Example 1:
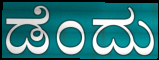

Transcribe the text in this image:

ಡೆಂದು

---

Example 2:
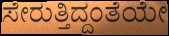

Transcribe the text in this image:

ಸೇರುತ್ತಿದ್ದಂತೆಯೇ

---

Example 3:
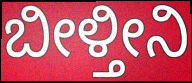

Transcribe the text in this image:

ಬೀಳ್ತೀನಿ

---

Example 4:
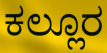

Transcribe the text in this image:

ಕಲ್ಲೂರ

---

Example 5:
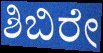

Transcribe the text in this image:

ಶಿಬಿರೇ